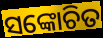
ସଙ୍କୋଚିତ